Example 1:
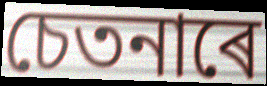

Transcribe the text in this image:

চেতনাৰে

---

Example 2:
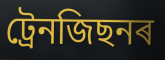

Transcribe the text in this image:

ট্ৰেনজিছনৰ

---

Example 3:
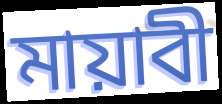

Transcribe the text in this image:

মায়াবী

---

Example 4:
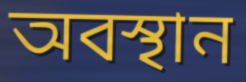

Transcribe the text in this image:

অবস্থান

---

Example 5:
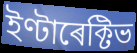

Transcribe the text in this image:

ইণ্টাৰেক্টিভ